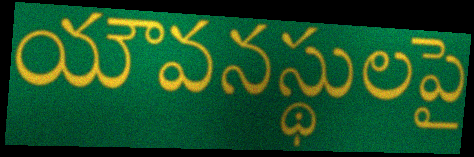
యౌవనస్థులపై